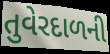
તુવેરદાળની